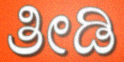
ತೀಡಿ